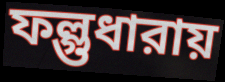
ফল্গুধারায়